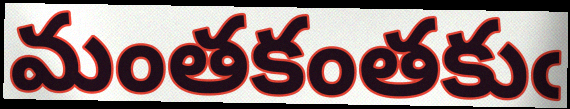
మంతకంతకుఁ